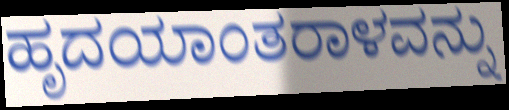
ಹೃದಯಾಂತರಾಳವನ್ನು